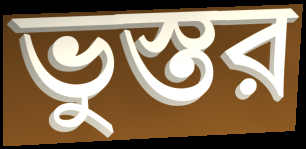
ভুস্তর